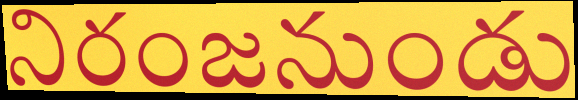
నిరంజనుండు